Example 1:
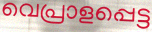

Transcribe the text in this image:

വെപ്രാളപ്പെട്ട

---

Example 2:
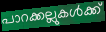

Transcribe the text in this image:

പാറക്കല്ലുകൾക്ക്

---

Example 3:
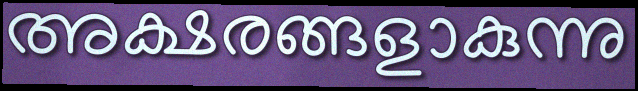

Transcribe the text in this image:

അക്ഷരങ്ങളാകുന്നു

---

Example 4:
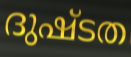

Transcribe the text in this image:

ദുഷ്ടത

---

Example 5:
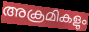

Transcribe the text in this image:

അക്രമികളും